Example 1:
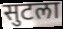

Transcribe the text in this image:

सुटला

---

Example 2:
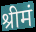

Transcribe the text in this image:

श्रीमं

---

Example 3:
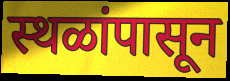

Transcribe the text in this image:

स्थळांपासून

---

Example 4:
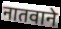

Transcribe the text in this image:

नातवाने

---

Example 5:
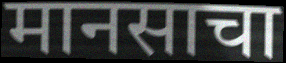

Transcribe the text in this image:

मानसाचा